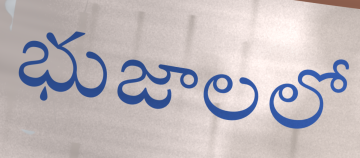
భుజాలలో